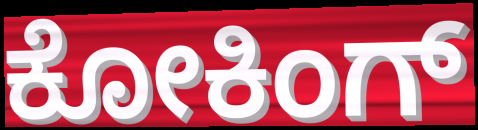
ಕೋಕಿಂಗ್